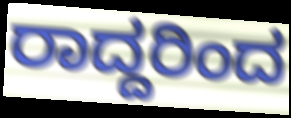
ರಾದ್ದರಿಂದ